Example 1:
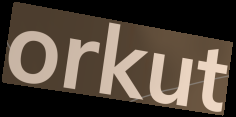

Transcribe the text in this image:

orkut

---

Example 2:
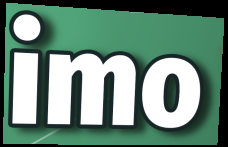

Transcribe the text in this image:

imo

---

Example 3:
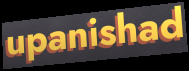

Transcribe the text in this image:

upanishad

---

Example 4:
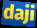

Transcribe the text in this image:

daji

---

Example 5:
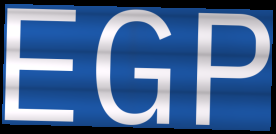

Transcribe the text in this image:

EGP